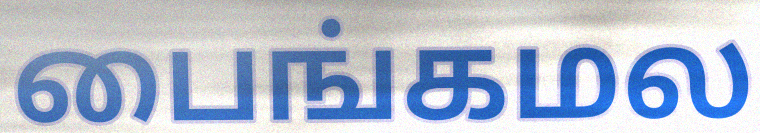
பைங்கமல